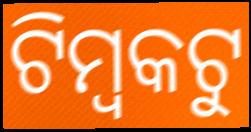
ଟିମ୍ବକଟୁ